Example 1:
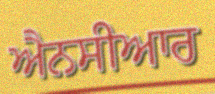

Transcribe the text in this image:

ਐਨਸੀਆਰ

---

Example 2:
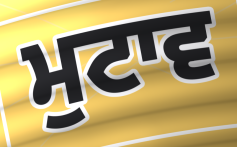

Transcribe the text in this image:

ਮੁਟਾਵ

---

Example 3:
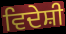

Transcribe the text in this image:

ਵਿਦੇਸ਼ੀ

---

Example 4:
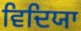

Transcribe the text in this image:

ਵਿਦਿਯਾ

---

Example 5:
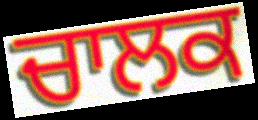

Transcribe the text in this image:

ਚਾਲਕ